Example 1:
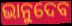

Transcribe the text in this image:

ଭାନୁଦେବ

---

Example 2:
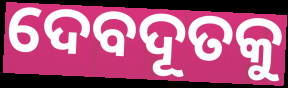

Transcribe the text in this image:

ଦେବଦୂତକୁ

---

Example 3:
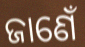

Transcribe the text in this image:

ଜାଣେଁ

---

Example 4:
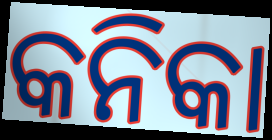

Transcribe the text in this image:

କନିକା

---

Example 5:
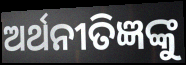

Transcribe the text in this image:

ଅର୍ଥନୀତିଜ୍ଞଙ୍କୁ